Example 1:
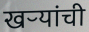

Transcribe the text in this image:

खऱ्यांची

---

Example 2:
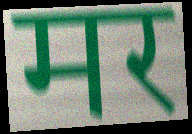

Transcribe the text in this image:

मर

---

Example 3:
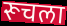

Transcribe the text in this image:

रूचला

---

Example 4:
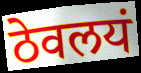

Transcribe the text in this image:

ठेवलयं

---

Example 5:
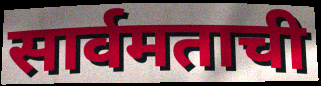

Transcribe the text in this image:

सार्वमताची